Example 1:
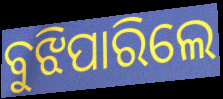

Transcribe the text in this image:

ବୁଝିପାରିଲେ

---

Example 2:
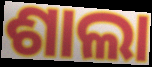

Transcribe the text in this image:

ଶାଲା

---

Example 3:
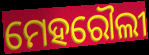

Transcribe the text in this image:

ମେହରୌଲୀ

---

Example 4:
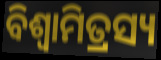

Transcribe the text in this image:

ବିଶ୍ଵାମିତ୍ରସ୍ୟ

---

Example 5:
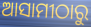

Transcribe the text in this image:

ଆସାମୀଠାରୁ